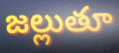
జల్లుతూ